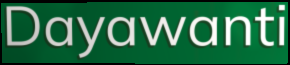
Dayawanti